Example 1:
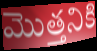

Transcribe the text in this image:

మొత్తనికి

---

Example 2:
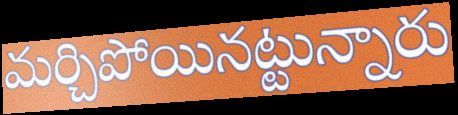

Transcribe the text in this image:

మర్చిపోయినట్టున్నారు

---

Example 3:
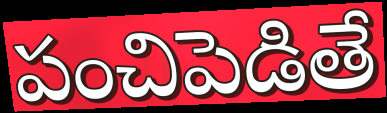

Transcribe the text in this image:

పంచిపెడితే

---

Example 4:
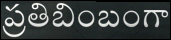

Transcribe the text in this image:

ప్రతిబింబంగా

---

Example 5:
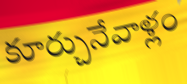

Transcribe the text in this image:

కూర్చునేవాళ్లం